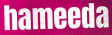
hameeda